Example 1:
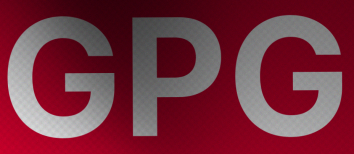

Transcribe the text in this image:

GPG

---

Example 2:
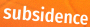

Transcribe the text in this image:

subsidence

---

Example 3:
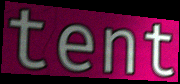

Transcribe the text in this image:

tent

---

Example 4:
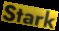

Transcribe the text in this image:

Stark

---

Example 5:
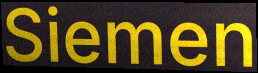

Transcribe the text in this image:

Siemen